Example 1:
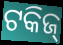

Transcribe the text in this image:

ଟକିଜ୍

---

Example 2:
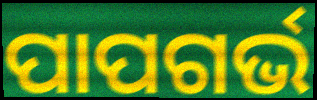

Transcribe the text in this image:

ପାପଗର୍ଭ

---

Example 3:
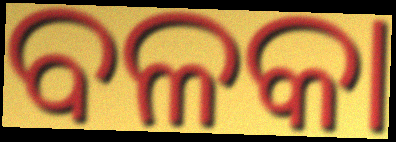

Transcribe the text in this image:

ବଳକା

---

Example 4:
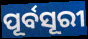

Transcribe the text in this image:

ପୂର୍ବସୂରୀ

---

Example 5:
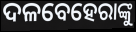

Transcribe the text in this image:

ଦଳବେହେରାଙ୍କୁ